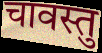
चावस्तु